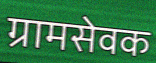
ग्रामसेवक